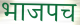
भाजपच